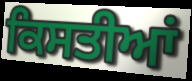
ਕਿਸਤੀਆਂ